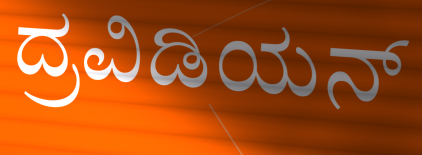
ದ್ರವಿಡಿಯನ್